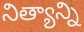
నిత్యాన్ని